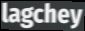
lagchey